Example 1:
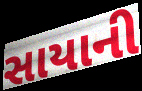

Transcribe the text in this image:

સાયાની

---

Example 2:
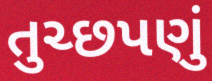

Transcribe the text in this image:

તુચ્છપણું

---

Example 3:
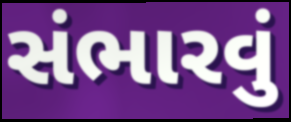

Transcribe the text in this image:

સંભારવું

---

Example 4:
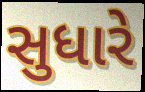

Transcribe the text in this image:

સુધારે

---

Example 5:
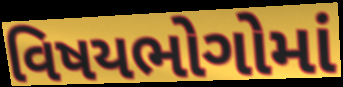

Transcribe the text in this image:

વિષયભોગોમાં